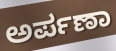
ಅರ್ಪಣಾ